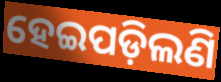
ହେଇପଡ଼ିଲଣି